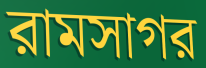
রামসাগর